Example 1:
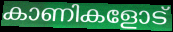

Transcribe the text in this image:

കാണികളോട്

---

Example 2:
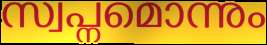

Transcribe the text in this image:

സ്വപ്നമൊന്നും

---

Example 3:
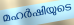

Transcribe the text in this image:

മഹർഷിയുടെ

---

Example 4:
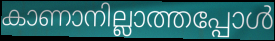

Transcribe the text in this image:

കാണാനില്ലാത്തപ്പോൾ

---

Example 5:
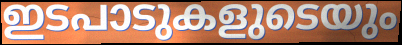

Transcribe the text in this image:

ഇടപാടുകളുടെയും